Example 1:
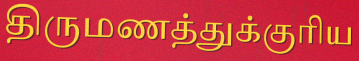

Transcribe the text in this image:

திருமணத்துக்குரிய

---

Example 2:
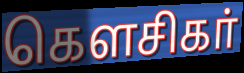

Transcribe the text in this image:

கௌசிகர்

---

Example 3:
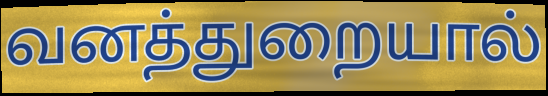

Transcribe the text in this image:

வனத்துறையால்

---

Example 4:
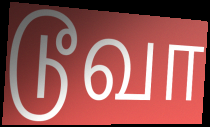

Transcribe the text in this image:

டூவா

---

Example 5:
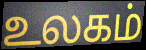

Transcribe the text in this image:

உலகம்